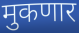
मुकणार